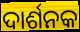
ଦାର୍ଶନକ